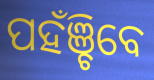
ପହଁଞ୍ଚିବେ